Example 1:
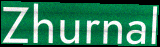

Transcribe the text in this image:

Zhurnal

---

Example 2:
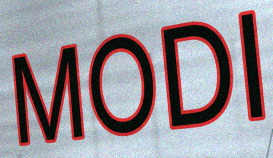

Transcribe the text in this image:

MODI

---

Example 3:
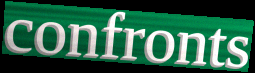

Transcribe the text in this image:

confronts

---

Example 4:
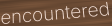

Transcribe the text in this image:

encountered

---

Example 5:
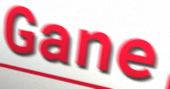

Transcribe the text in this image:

Gane